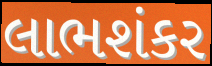
લાભશંકર